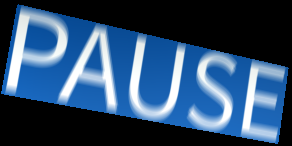
PAUSE